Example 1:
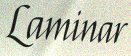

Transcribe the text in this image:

Laminar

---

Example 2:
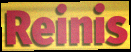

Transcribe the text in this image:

Reinis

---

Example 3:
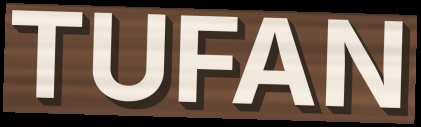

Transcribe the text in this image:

TUFAN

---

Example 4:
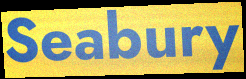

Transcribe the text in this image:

Seabury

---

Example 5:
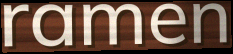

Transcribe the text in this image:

ramen